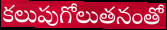
కలుపుగోలుతనంతో